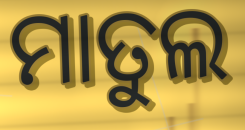
ମାତୁଲ